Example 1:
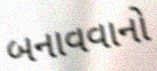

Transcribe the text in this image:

બનાવવાનો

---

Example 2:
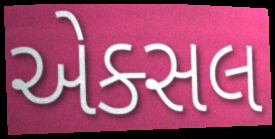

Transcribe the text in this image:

એક્સલ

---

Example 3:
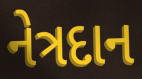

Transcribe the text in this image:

નેત્રદાન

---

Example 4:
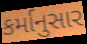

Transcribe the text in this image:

કર્માનુસાર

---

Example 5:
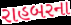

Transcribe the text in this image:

રાહબરના